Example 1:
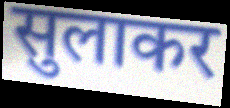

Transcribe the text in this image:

सुलाकर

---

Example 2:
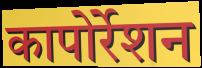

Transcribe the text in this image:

कापोर्रेशन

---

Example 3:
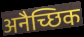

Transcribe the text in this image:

अनैच्छिक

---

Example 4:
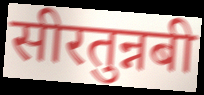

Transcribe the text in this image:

सीरतुन्नबी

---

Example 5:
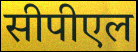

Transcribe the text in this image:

सीपीएल